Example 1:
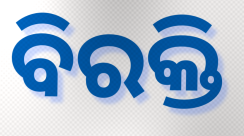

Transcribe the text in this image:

ବିରକ୍ତି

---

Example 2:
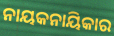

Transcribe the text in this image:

ନାୟକନାୟିକାର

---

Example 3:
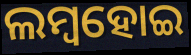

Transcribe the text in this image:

ଲମ୍ୱହୋଇ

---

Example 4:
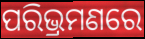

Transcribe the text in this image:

ପରିଭ୍ରମଣରେ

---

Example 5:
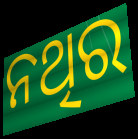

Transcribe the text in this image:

ନଥିର